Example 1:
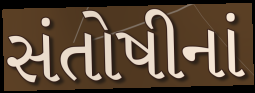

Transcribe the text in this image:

સંતોષીનાં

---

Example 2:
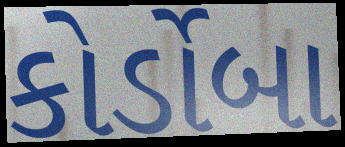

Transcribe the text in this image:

કોર્ડોબા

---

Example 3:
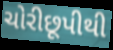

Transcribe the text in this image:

ચોરીછૂપીથી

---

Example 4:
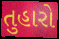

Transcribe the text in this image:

તુહારો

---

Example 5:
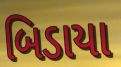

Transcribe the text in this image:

બિડાયા